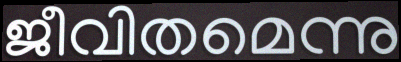
ജീവിതമെന്നു